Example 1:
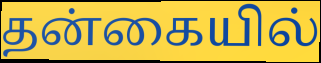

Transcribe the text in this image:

தன்கையில்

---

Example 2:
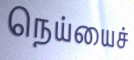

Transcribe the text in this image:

நெய்யைச்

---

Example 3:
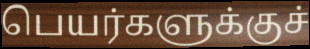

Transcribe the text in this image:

பெயர்களுக்குச்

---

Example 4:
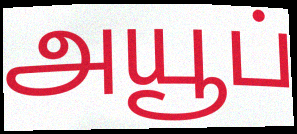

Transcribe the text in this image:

அயூப்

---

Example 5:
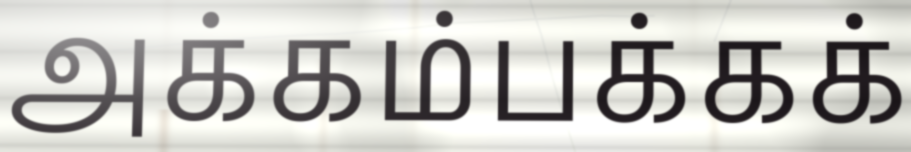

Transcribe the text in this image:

அக்கம்பக்கக்